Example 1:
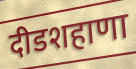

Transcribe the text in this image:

दीडशहाणा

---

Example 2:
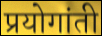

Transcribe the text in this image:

प्रयोगांती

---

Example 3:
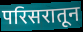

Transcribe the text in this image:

परिसरातून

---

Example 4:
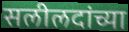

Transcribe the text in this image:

सलीलदांच्या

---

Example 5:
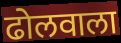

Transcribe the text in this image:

ढोलवाला